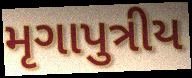
મૃગાપુત્રીય